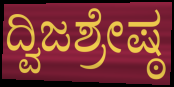
ದ್ವಿಜಶ್ರೇಷ್ಠ